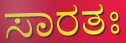
ಸಾರತಃ